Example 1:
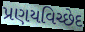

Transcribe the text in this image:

પ્રણયવિચ્છેદ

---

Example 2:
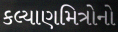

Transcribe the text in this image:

કલ્યાણમિત્રોનો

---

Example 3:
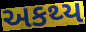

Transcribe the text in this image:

અકથ્ય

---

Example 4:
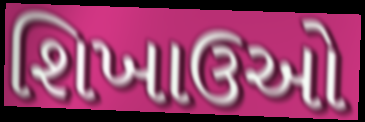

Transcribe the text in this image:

શિખાઉઓ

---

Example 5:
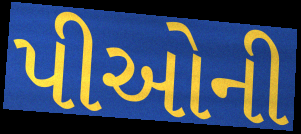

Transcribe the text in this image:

પીઓની